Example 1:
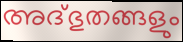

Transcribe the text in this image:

അദ്ഭുതങ്ങളും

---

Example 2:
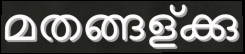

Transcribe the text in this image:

മതങ്ങള്ക്കു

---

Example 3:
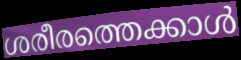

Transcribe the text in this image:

ശരീരത്തെക്കാൾ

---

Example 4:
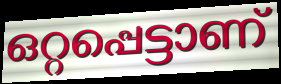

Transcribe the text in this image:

ഒറ്റപ്പെട്ടാണ്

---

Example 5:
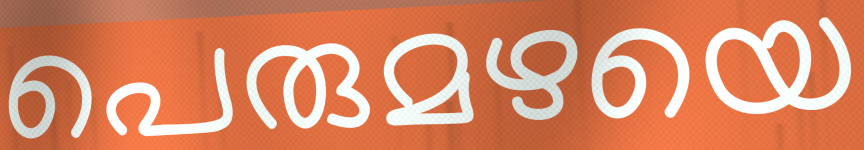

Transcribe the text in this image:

പെരുമഴയെ